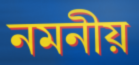
নমনীয়